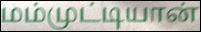
மம்முட்டியான்